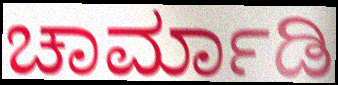
ಚಾರ್ಮಾಡಿ